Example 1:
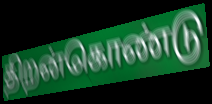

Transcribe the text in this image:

திறன்கொண்டு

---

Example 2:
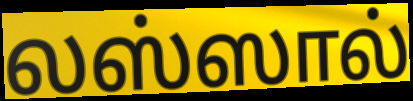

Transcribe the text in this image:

லஸ்ஸால்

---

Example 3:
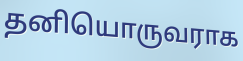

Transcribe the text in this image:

தனியொருவராக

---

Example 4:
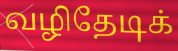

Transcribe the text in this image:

வழிதேடிக்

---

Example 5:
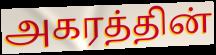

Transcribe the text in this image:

அகரத்தின்